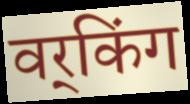
वर्किंग